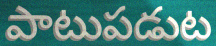
పాటుపడుట